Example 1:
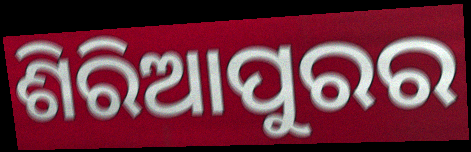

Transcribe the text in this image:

ଶିରିଆପୁରର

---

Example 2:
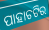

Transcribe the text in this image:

ପାହାଚଟିର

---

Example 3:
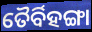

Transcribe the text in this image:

ତୈର୍ବିହଙ୍ଗା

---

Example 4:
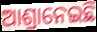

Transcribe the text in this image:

ଆଶ୍ରାନେଇଛି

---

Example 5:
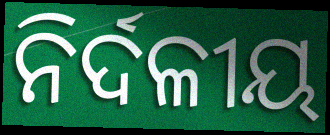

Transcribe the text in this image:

ନିର୍ଦଳୀୟ